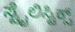
ಸ್ಟೈಲಿಸ್ಟಿಕ್ಸ್